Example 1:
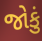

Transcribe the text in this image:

જોકું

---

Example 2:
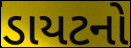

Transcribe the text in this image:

ડાયટનો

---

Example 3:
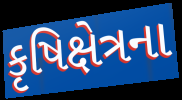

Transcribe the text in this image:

કૃષિક્ષેત્રના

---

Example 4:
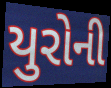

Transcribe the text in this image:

યુરોની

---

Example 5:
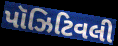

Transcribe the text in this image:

પૉઝિટિવલી